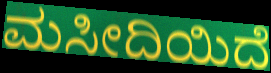
ಮಸೀದಿಯಿದೆ